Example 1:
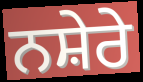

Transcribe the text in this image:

ਨਸ਼ੇਰੇ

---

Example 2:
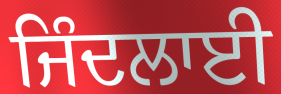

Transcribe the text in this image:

ਜਿੰਦਲਾਈ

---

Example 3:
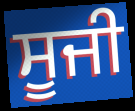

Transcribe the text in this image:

ਸੂਜੀ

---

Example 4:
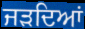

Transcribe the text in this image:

ਜੜਦਿਆਂ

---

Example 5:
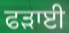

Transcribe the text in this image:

ਫੜਾਈ